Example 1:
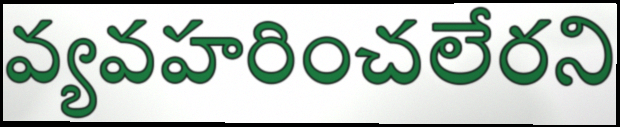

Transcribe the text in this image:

వ్యవహరించలేరని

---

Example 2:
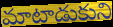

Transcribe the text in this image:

మాటాడుకుని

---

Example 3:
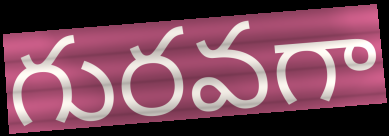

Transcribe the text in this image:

గురవగా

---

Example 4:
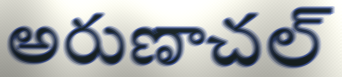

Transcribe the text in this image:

అరుణాచల్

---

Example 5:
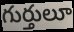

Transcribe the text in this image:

గుర్తులూ